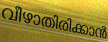
വീഴാതിരിക്കാൻ